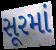
સૂરમાં